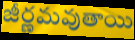
జీర్ణమవుతాయి